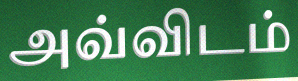
அவ்விடம்